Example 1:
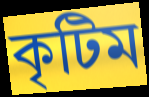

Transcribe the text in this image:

কৃটিম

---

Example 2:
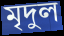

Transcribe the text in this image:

মৃদুল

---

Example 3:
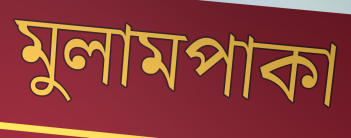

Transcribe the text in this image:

মুলামপাকা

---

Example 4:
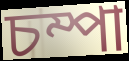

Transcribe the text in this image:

চম্পা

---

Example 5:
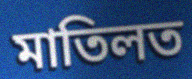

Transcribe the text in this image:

মাতিলত